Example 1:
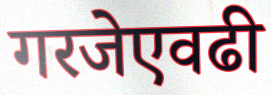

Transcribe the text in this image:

गरजेएवढी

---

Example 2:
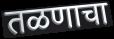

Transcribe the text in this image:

तळणाचा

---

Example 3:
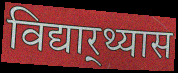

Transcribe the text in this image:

विद्यार्थ्यास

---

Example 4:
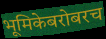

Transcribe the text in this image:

भूमिकेबरोबरच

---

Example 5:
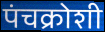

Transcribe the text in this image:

पंचक्रोशी